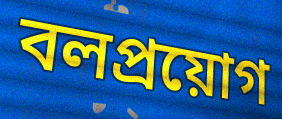
বলপ্রয়োগ